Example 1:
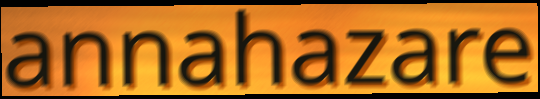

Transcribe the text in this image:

annahazare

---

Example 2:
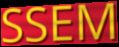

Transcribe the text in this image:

SSEM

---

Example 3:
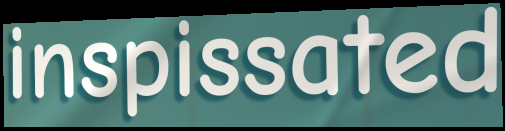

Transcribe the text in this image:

inspissated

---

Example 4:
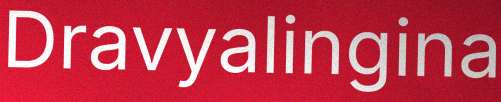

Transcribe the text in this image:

Dravyalingina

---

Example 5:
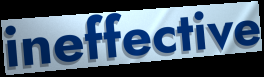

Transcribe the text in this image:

ineffective